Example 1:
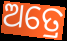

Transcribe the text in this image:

ଅତ୍ରେ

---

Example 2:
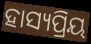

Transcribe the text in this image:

ହାସ୍ୟପ୍ରିୟ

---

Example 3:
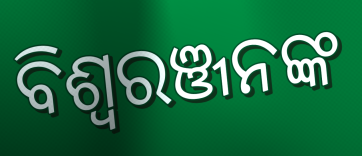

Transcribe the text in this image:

ବିଶ୍ବରଞ୍ଜନଙ୍କ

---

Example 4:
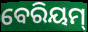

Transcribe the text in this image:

ବେରିୟମ୍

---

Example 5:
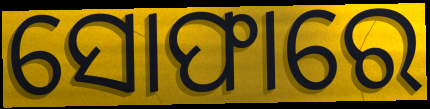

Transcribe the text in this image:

ସୋଫାରେ